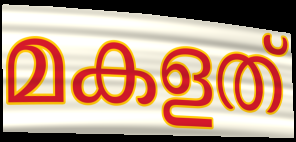
മകളത്